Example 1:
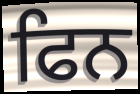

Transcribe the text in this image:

ਫਿਨ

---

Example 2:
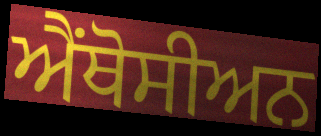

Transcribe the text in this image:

ਐਂਥੋਸੀਅਨ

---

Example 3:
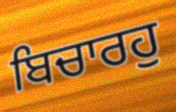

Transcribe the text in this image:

ਬਿਚਾਰਹੁ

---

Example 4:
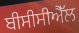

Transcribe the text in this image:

ਬੀਸੀਸੀਐੱਲ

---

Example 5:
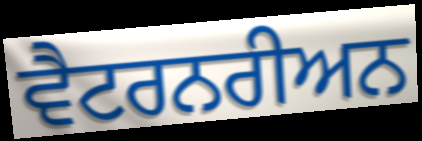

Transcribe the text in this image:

ਵੈਟਰਨਰੀਅਨ